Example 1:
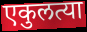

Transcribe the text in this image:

एकुलत्या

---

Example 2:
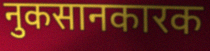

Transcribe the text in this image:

नुकसानकारक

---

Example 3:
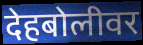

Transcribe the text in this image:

देहबोलीवर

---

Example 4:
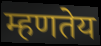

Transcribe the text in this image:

म्हणतेय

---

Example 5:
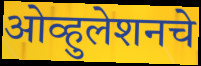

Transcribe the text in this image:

ओव्हुलेशनचे